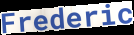
Frederic